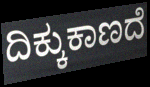
ದಿಕ್ಕುಕಾಣದೆ